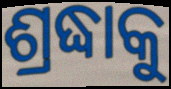
ଶ୍ରଦ୍ଧାକୁ